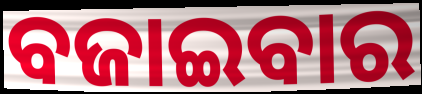
ବଜାଇବାର